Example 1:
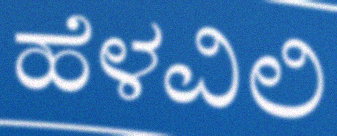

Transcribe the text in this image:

ಹೆಳವಿಲಿ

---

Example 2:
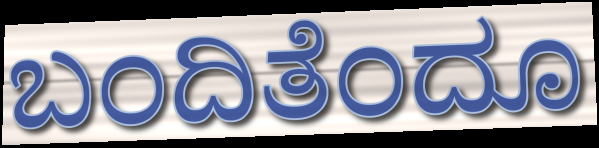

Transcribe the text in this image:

ಬಂದಿತೆಂದೂ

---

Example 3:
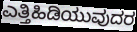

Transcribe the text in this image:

ಎತ್ತಿಹಿಡಿಯುವುದರ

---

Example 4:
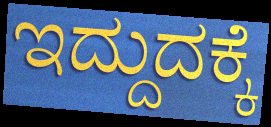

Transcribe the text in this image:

ಇದ್ದುದಕ್ಕೆ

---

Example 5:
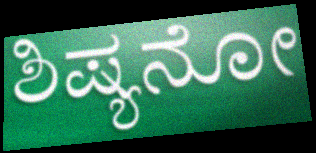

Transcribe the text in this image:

ಶಿಷ್ಯನೋ